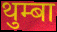
थुम्बा